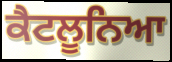
ਕੈਟਲੂਨਿਆ